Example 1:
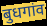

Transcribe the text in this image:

बुधगांव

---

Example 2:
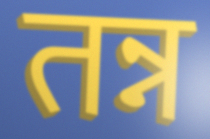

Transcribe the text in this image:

तन्न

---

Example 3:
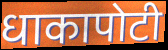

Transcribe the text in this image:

धाकापोटी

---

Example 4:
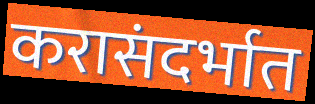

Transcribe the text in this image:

करासंदर्भात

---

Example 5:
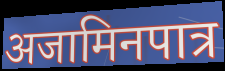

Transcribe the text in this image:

अजामिनपात्र